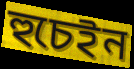
হুচেইন